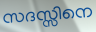
സദസ്സിനെ